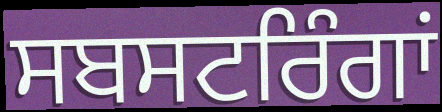
ਸਬਸਟਰਿੰਗਾਂ